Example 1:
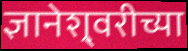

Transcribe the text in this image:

ज्ञानेश्र्वरीच्या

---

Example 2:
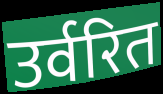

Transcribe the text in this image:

उर्वरित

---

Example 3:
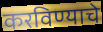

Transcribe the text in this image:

करविण्याचे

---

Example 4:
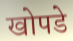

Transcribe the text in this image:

खोपडे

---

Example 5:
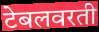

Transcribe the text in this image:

टेबलवरती